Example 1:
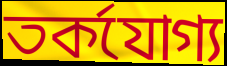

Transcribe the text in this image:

তর্কযোগ্য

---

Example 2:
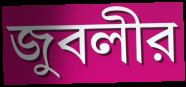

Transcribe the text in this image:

জুবলীর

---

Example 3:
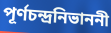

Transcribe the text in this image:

পূর্ণচন্দ্রনিভাননী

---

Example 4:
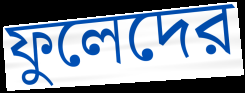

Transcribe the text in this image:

ফুলেদের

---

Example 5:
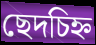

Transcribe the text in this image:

ছেদচিহ্ন